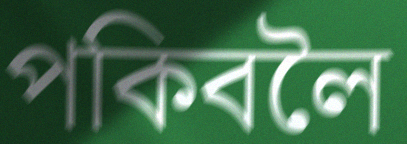
পকিবলৈ